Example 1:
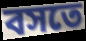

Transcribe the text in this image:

বসতে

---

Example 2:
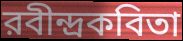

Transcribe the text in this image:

রবীন্দ্রকবিতা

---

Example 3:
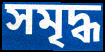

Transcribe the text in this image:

সমৃদ্ধ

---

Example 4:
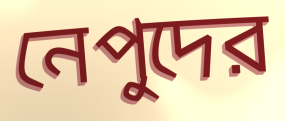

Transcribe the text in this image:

নেপুদের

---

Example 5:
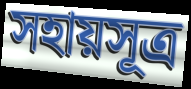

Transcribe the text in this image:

সহায়সূত্র